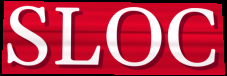
SLOC